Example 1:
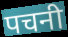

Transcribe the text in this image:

पचनी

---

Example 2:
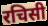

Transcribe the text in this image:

रचिसी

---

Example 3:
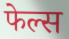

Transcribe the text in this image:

फेल्स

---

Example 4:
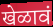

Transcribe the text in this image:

खेळावं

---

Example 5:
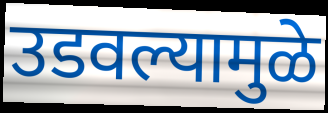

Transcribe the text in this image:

उडवल्यामुळे